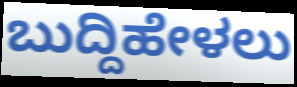
ಬುದ್ದಿಹೇಳಲು